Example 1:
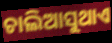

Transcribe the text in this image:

ଚାଲିଆସୁଥାଏ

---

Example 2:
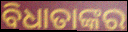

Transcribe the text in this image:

ବିଧାତାଙ୍କର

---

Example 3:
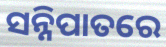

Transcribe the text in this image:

ସନ୍ନିପାତରେ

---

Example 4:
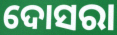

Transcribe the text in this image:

ଦୋସରା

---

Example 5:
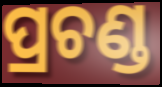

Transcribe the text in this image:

ପ୍ରଚଣ୍ଡ